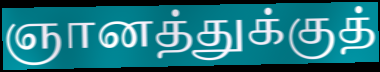
ஞானத்துக்குத்